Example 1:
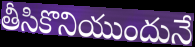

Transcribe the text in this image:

తీసికొనియుందునే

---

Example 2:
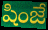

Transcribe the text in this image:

షింజే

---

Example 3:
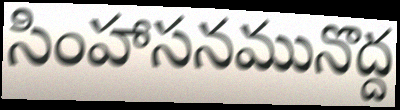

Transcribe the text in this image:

సింహాసనమునొద్ద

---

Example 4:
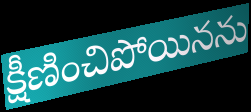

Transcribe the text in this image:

క్షీణించిపోయినను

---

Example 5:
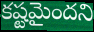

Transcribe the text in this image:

కష్టమైందని